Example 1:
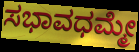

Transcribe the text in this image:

ಸಭಾವಧಮ್ಮೇ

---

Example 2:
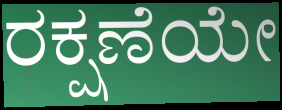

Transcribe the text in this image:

ರಕ್ಷಣೆಯೇ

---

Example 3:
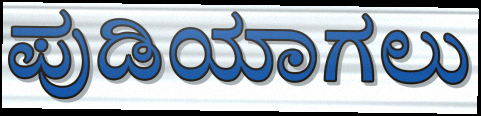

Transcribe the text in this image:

ಪುಡಿಯಾಗಲು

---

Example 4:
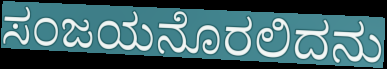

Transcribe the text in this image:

ಸಂಜಯನೊರಲಿದನು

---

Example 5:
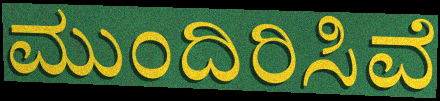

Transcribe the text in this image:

ಮುಂದಿರಿಸಿವೆ